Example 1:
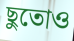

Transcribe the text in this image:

ছুতোও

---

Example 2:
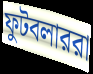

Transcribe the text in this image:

ফুটবলাররা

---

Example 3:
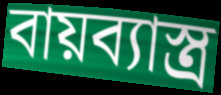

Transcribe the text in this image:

বায়ব্যাস্ত্র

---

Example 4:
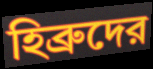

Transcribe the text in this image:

হিব্রুদের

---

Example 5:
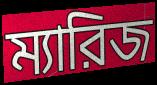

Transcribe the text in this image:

ম্যারিজ